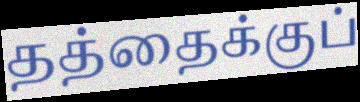
தத்தைக்குப்